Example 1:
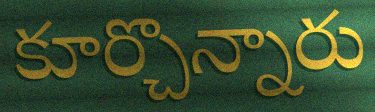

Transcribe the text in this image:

కూర్చొన్నారు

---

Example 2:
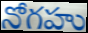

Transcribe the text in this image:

నోగహు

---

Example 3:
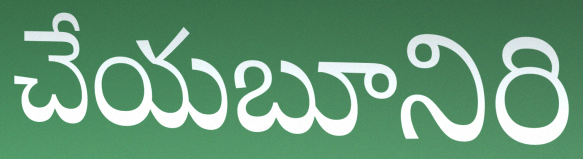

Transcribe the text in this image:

చేయబూనిరి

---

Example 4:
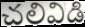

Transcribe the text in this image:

చలివిడి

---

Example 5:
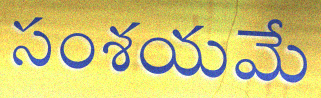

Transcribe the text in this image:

సంశయమే